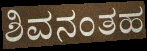
ಶಿವನಂತಹ